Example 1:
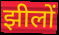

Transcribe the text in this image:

झीलों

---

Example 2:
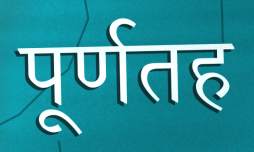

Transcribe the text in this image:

पूर्णतह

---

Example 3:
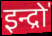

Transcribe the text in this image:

इन्द्रो॑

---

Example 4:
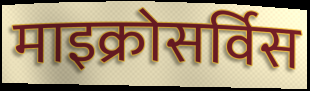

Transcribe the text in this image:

माइक्रोसर्विस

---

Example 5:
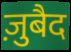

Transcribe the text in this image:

ज़ुबैद